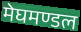
मेघमण्डल